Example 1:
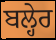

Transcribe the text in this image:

ਬਲ੍ਹੇਰ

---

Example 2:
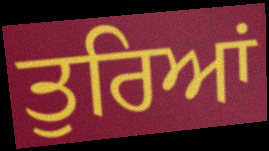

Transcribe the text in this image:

ਤੁਰਿਆਂ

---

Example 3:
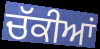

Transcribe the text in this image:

ਚੱਕੀਆਂ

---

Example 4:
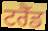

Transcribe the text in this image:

ਟਰੈੱਡ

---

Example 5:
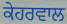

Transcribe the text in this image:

ਕੇਹਰਵਾਲ